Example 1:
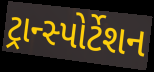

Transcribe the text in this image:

ટ્રાન્સ્પોર્ટેશન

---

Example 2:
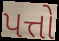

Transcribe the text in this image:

પત્તો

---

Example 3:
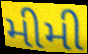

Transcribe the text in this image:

મીમી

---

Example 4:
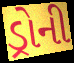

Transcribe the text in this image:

ડ્રોની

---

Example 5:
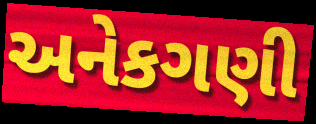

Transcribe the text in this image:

અનેકગણી